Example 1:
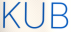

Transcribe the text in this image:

KUB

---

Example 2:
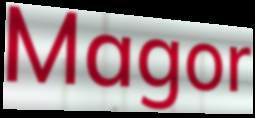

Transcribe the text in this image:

Magor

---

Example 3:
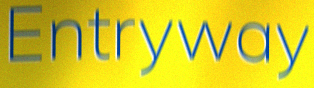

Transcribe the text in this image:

Entryway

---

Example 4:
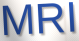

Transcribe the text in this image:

MRI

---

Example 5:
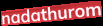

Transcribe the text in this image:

nadathurom